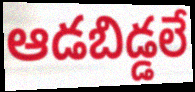
ఆడబిడ్డలే